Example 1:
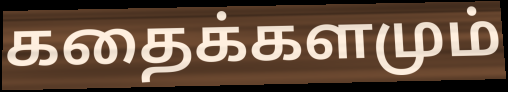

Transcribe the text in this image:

கதைக்களமும்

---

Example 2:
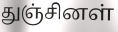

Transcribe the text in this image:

துஞ்சினள்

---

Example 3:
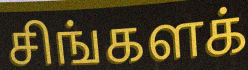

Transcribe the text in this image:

சிங்களக்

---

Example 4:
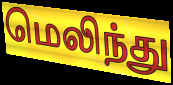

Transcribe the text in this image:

மெலிந்து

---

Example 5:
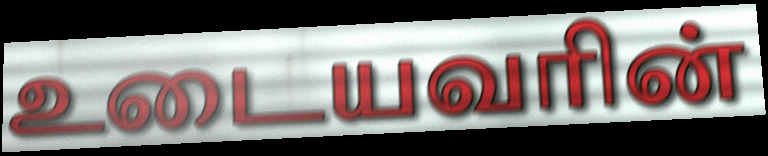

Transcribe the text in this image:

உடையவரின்